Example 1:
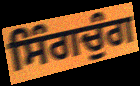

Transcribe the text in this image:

ਸਿੰਗਚੁੰਗ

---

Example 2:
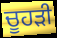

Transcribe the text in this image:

ਚੂਹੜੀ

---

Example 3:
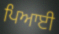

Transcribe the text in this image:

ਪਿਆਈ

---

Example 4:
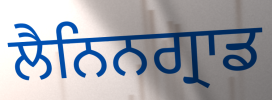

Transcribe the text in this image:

ਲੈਨਿਨਗ੍ਰਾਡ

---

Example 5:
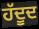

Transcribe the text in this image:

ਹੱਦੂਦ